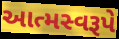
આત્મસ્વરૂપે